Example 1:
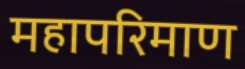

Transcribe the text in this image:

महापरिमाण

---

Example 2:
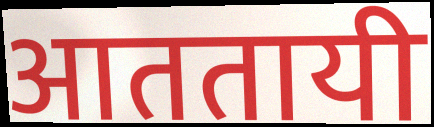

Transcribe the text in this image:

आततायी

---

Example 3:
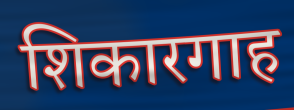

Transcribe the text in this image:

शिकारगाह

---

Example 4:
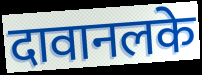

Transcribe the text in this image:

दावानलके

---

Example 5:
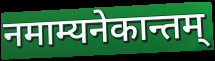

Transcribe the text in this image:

नमाम्यनेकान्तम्